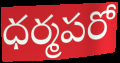
ధర్మపరో